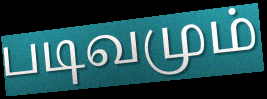
படிவமும்